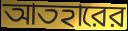
আতহারের